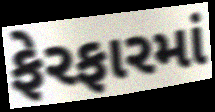
ફેરફારમાં